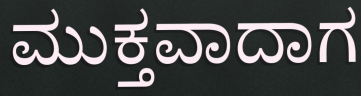
ಮುಕ್ತವಾದಾಗ